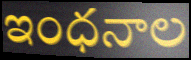
ఇంధనాల